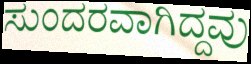
ಸುಂದರವಾಗಿದ್ದವು